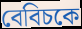
বেবিচকে